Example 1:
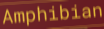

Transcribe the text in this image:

Amphibian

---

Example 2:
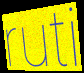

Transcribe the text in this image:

ruti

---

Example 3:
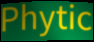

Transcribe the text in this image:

Phytic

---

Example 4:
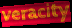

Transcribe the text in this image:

veracity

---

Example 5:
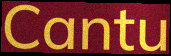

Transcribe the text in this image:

Cantu